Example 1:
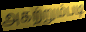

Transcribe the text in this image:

அகற்றும்படி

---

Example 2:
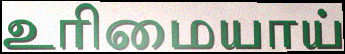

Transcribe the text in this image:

உரிமையாய்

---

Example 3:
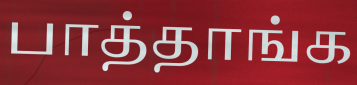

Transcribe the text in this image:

பாத்தாங்க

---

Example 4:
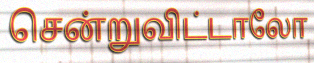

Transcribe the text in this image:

சென்றுவிட்டாலோ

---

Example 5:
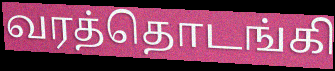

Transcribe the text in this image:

வரத்தொடங்கி